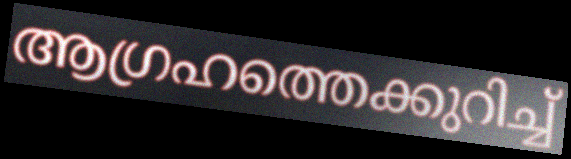
ആഗ്രഹത്തെക്കുറിച്ച്